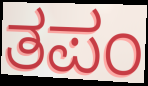
ತಪಂ